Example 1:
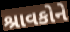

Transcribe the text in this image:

શ્રાવકોને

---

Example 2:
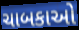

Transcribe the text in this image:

ચાબકાઓ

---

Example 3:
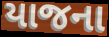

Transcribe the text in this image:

યાજના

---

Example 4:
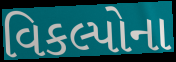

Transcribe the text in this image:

વિકલ્પોના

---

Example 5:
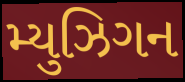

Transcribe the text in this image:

મ્યુઝિગન